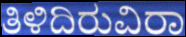
ತಿಳಿದಿರುವಿರಾ